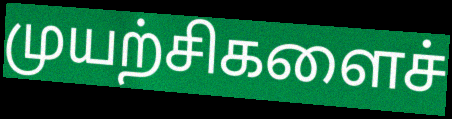
முயற்சிகளைச்